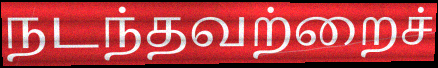
நடந்தவற்றைச்